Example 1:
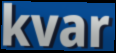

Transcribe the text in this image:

kvar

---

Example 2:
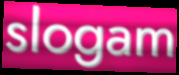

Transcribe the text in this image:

slogam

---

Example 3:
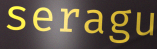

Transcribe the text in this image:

seragu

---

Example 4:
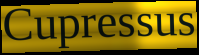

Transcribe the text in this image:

Cupressus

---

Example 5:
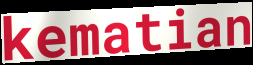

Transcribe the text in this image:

kematian